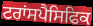
ਟਰਾਂਸਪੈਸਿਫਿਕ